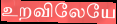
உறவிலேயே